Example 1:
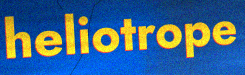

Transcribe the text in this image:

heliotrope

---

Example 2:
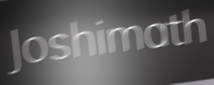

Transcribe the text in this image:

Joshimath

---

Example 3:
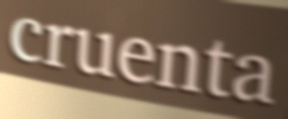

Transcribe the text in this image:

cruenta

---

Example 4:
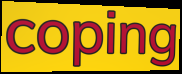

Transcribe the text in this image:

coping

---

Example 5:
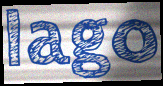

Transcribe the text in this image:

Iago